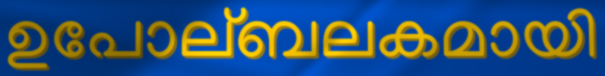
ഉപോല്ബലകമായി